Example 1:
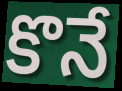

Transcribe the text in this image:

కొనే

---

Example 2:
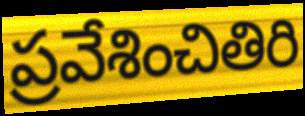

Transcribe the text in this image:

ప్రవేశించితిరి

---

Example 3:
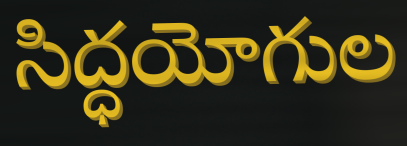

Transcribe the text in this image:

సిద్ధయోగుల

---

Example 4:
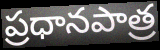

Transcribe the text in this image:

ప్రధానపాత్ర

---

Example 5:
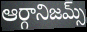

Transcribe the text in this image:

ఆర్గానిజమ్స్